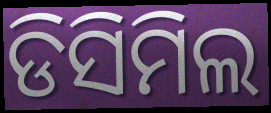
ଡିସିମିଲ